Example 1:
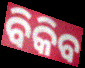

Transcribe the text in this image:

ବିକିବ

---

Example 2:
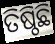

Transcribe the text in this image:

ତିଷ୍ଠିଛି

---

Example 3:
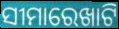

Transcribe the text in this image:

ସୀମାରେଖାଟି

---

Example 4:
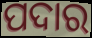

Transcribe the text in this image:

ପଦାର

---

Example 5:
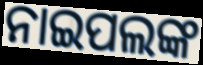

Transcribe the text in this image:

ନାଇପଲଙ୍କ